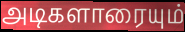
அடிகளாரையும்